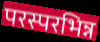
परस्परभिन्न